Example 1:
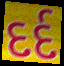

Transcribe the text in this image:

દર્દ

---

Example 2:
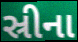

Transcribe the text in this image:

સ્રીના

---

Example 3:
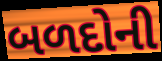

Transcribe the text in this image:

બળદોની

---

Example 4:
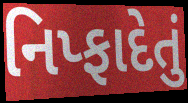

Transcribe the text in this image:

નિપ્ફાદેતું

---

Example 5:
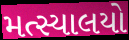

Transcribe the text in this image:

મત્સ્યાલયો